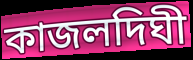
কাজলদিঘী